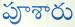
పూశారు